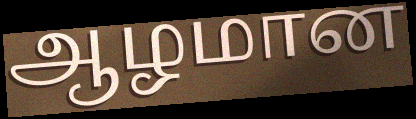
ஆழமான